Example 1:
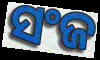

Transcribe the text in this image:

ସଂଜ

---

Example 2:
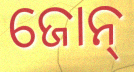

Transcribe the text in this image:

ଜୋନ୍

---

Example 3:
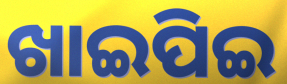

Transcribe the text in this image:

ଖାଇପିଇ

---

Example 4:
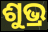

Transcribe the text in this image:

ଶୁଭ୍ର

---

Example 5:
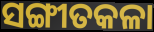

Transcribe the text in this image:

ସଙ୍ଗୀତକଳା